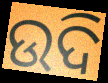
ଉଦି